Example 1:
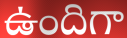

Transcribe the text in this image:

ఉందిగా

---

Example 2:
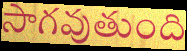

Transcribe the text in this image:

సాగవుతుంది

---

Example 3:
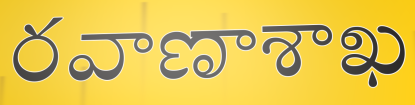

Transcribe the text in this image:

రవాణాశాఖ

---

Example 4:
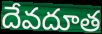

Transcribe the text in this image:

దేవదూత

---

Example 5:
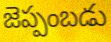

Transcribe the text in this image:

జెప్పంబడు